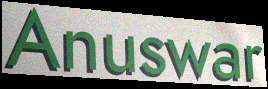
Anuswar